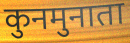
कुनमुनाता